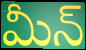
మీన్